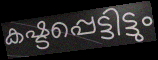
കഷ്ടപ്പെട്ടിട്ടും